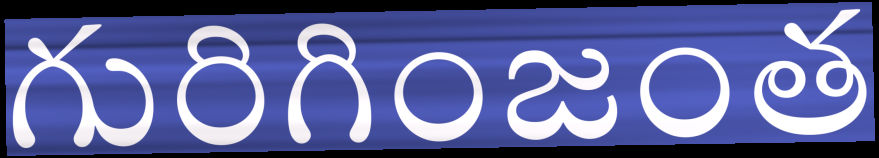
గురిగింజంత